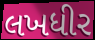
લખધીર